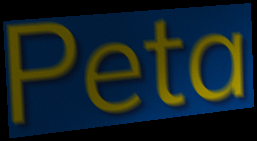
Peta